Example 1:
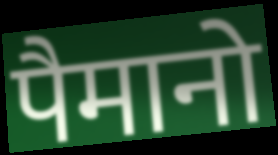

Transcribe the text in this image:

पैमानो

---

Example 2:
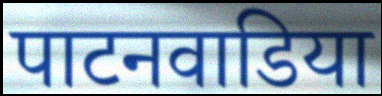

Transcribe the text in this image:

पाटनवाडिया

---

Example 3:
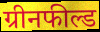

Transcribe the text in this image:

ग्रीनफील्‍ड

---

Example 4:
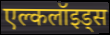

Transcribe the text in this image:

एल्कलॉइड्स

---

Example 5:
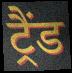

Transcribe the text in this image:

ट्रैंड